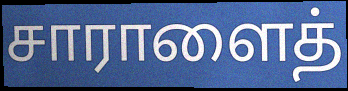
சாராளைத்